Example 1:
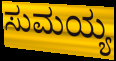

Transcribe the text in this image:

ಸುಮಯ್ಯ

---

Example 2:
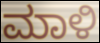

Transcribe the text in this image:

ಮಾಳಿ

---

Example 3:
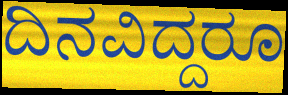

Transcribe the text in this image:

ದಿನವಿದ್ದರೂ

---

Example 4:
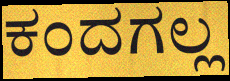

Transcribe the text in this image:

ಕಂದಗಲ್ಲ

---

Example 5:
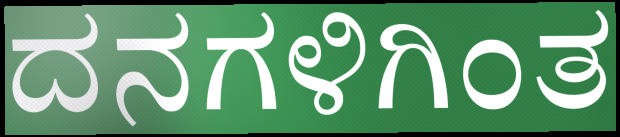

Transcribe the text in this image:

ದನಗಳಿಗಿಂತ